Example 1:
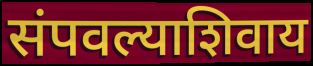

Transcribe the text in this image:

संपवल्याशिवाय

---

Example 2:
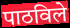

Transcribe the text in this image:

पाठविले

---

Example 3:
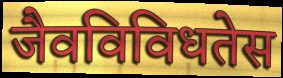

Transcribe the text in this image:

जैवविविधतेस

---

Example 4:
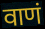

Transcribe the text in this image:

वाणं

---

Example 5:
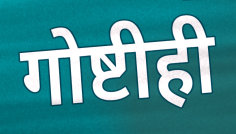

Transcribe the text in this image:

गोष्टीही